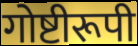
गोष्टीरूपी